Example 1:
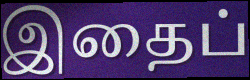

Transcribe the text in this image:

இதைப்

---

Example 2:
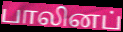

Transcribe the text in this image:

பாலினப்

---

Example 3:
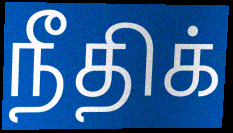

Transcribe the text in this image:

நீதிக்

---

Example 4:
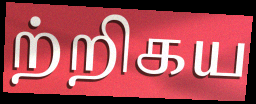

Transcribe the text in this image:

ற்றிகய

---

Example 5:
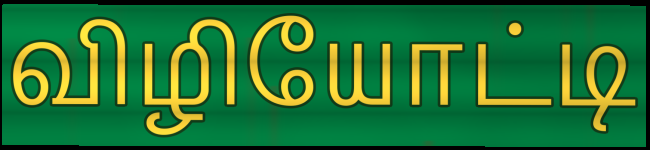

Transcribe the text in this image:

விழியோட்டி